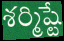
శర్మిష్టే